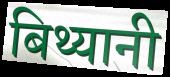
बिथ्यानी